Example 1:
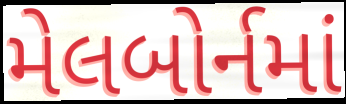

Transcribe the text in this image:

મેલબોર્નમાં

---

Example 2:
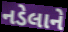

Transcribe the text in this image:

નડેલાને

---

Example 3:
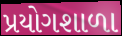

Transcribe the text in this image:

પ્રયોગશાળા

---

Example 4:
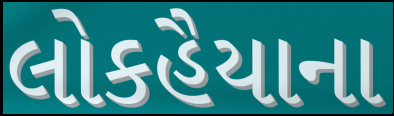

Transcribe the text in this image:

લોકહૈયાના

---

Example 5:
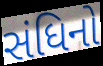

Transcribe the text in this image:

સંધિનો